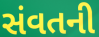
સંવતની